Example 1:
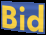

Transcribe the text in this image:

Bid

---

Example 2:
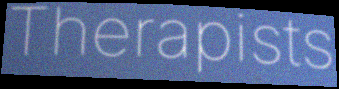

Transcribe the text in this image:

Therapists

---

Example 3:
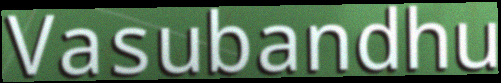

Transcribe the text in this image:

Vasubandhu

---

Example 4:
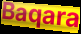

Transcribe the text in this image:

Baqara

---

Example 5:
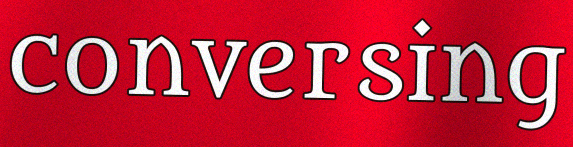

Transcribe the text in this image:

conversing